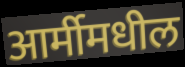
आर्मीमधील